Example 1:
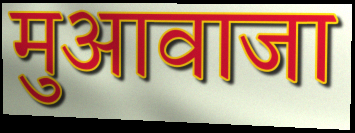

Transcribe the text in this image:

मुआवाजा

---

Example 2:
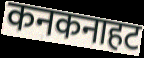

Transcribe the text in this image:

कनकनाहट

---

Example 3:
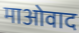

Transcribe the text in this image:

माओवाद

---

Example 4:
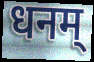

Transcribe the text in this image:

धनम्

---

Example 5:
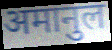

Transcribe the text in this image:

अमानुल